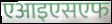
एआइएसएफ